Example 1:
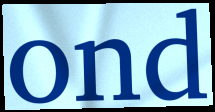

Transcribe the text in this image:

ond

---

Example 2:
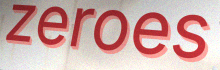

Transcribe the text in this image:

zeroes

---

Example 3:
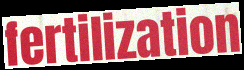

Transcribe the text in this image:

fertilization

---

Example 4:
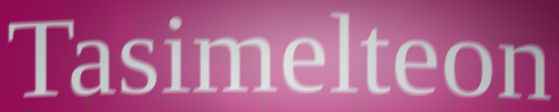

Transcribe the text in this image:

Tasimelteon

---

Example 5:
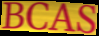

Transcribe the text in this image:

BCAS